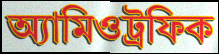
অ্যামিওট্রফিক